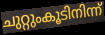
ചുറ്റുംകൂടിനിന്ന്